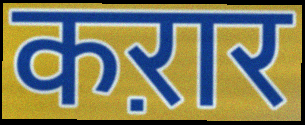
कऱार